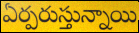
ఏర్పరుస్తున్నాయి